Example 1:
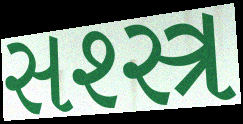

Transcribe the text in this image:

સશ્સ્ત્ર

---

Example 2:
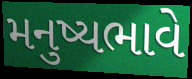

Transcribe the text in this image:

મનુષ્યભાવે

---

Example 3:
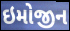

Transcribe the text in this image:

ઇમોજીન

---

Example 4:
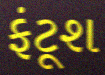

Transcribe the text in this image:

ફંટૂશ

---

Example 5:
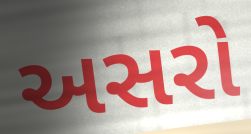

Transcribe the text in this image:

અસરો